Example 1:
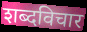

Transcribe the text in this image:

शब्दविचार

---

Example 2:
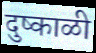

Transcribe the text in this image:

दुष्काळी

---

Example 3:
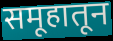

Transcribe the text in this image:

समूहातून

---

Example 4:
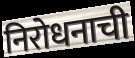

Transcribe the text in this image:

निरोधनाची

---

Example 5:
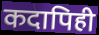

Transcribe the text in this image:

कदापिही